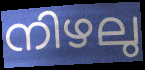
നിഴലു